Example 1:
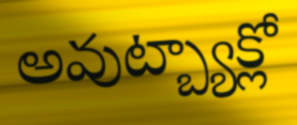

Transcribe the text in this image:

అవుట్బ్యాక్లో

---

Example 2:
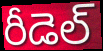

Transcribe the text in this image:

రీడెల్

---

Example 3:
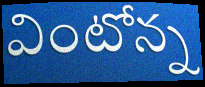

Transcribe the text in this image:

వింటోన్న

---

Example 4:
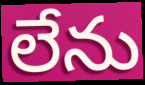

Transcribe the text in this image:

లేను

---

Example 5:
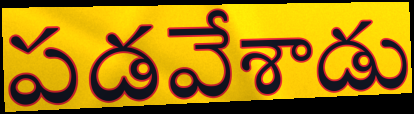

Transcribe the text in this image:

పడవేశాడు